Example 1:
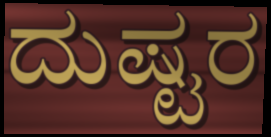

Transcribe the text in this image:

ದುಷ್ಟರ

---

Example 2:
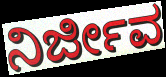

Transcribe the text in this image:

ನಿರ್ಜೀವ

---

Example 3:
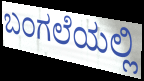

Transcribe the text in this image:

ಬಂಗಲೆಯಲ್ಲಿ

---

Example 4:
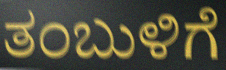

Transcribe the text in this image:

ತಂಬುಳಿಗೆ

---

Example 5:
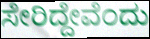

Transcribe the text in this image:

ಸೇರಿದ್ದೇವೆಂದು